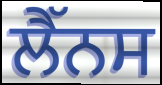
ਲੈੱਨਸ